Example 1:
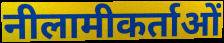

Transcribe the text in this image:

नीलामीकर्ताओं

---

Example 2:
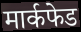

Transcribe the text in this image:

मार्कफेड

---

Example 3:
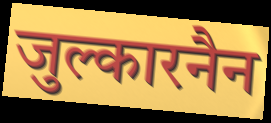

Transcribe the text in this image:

जुल्कारनैन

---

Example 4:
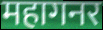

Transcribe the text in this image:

महागनर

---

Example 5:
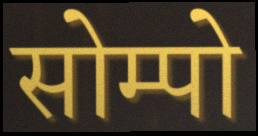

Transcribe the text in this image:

सोम्पो